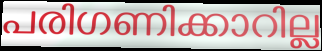
പരിഗണിക്കാറില്ല